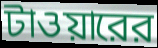
টাওয়ারের